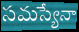
సమస్యేనా